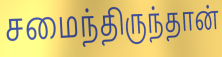
சமைந்திருந்தான்